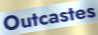
Outcastes